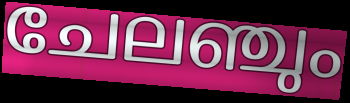
ചേലഞ്ചും